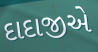
દાદાજીએ